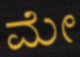
ಮೇ